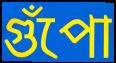
গুঁপো